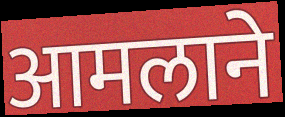
आमलाने